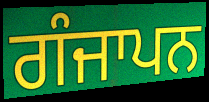
ਗੰਜਾਪਨ